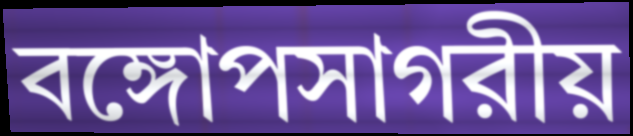
বঙ্গোপসাগরীয়